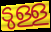
ടുള്ള